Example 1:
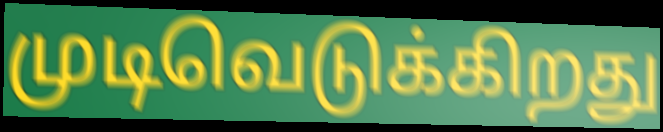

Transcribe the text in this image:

முடிவெடுக்கிறது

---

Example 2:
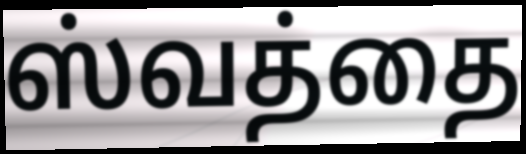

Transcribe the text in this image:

ஸ்வத்தை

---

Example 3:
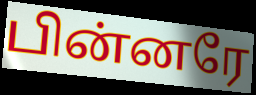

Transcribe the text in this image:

பின்னரே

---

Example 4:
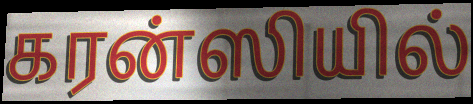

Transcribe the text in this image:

கரன்ஸியில்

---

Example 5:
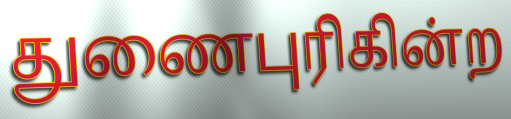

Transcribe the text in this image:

துணைபுரிகின்ற